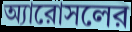
অ্যারোসলের